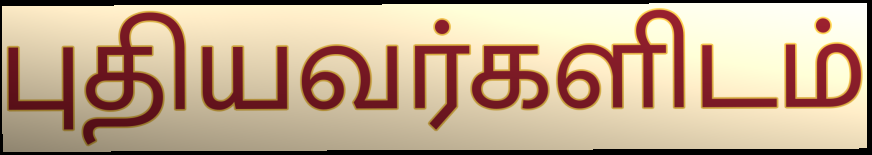
புதியவர்களிடம்